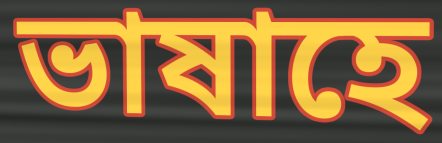
ভাষাহে